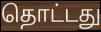
தொட்டது